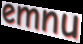
emnu